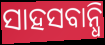
ସାହସବାନ୍ଧି